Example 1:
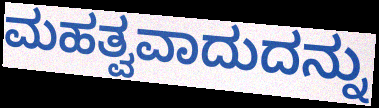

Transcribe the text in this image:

ಮಹತ್ವವಾದುದನ್ನು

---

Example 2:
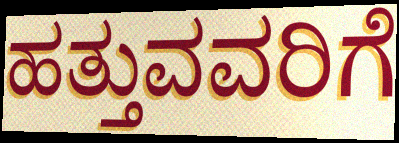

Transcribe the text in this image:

ಹತ್ತುವವರಿಗೆ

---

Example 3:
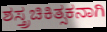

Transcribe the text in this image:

ಶಸ್ತ್ರಚಿಕಿತ್ಸಕನಾಗಿ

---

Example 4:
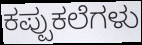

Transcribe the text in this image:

ಕಪ್ಪುಕಲೆಗಳು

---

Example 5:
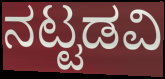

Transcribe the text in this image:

ನಟ್ಟಡವಿ